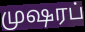
முஷரப்